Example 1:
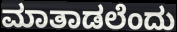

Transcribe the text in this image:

ಮಾತಾಡಲೆಂದು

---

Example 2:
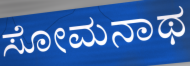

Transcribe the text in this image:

ಸೋಮನಾಥ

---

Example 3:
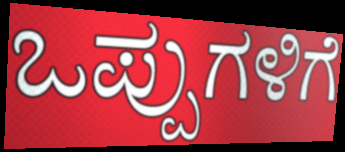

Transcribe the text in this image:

ಒಪ್ಪುಗಳಿಗೆ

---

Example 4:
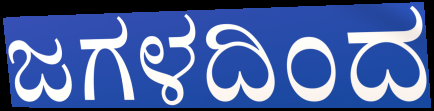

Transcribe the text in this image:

ಜಗಳದಿಂದ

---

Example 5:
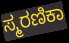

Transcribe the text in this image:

ಸ್ಮರಣಿಕಾ